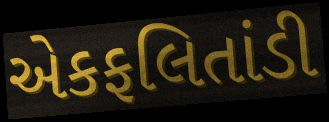
એકફલિતાંડી